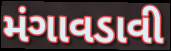
મંગાવડાવી